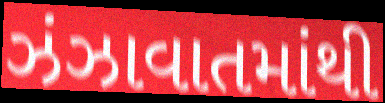
ઝંઝાવાતમાંથી